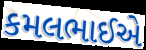
કમલભાઈએ